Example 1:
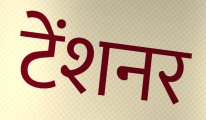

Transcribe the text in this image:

टेंशनर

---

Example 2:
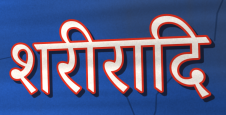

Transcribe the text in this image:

शरीरादि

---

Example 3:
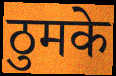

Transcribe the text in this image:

ठुमके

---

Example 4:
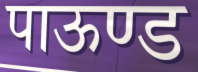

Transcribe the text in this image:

पाऊण्ड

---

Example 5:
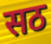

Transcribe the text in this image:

सठ